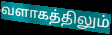
வளாகத்திலும்